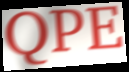
QPE